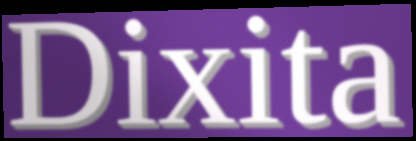
Dixita